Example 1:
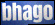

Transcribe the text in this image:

bhago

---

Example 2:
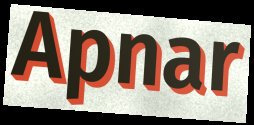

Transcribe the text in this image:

Apnar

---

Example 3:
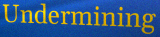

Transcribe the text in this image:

Undermining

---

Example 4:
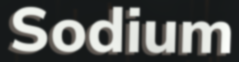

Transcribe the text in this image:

Sodium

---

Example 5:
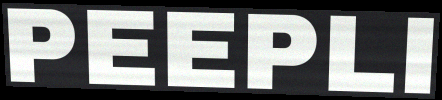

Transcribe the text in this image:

PEEPLI